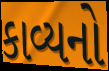
કાવ્યનો